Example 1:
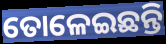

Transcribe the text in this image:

ତୋଳେଇଛନ୍ତି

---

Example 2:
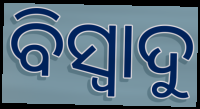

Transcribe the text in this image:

ବିସ୍ୱାଦୁ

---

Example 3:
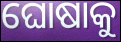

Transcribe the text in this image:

ଘୋଷାକୁ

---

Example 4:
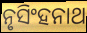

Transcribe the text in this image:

ନୃସିଂହନାଥ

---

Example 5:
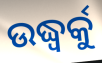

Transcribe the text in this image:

ଉଦ୍ଧ୍ୱର୍କୁ